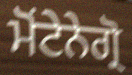
ਮੋਂਟੇਨੇਗ੍ਰੋ